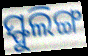
ସ୍ଫୁଲିଙ୍ଗ